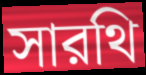
সারথি